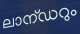
ലാന്ഡറും